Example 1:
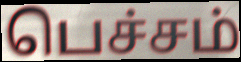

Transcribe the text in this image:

பெச்சம்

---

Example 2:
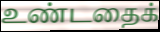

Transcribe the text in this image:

உண்டதைக்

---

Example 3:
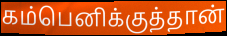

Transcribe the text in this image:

கம்பெனிக்குத்தான்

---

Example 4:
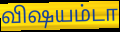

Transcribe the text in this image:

விஷயம்டா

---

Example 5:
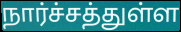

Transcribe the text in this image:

நார்ச்சத்துள்ள